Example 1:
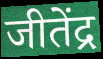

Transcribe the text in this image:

जीतेंद्र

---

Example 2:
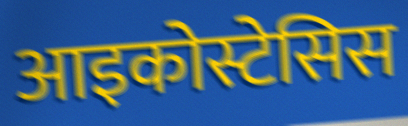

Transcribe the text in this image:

आइकोस्टेसिस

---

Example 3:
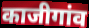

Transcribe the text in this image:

काजीगांव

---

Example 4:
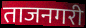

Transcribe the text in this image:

ताजनगरी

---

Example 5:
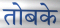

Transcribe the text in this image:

तोबके